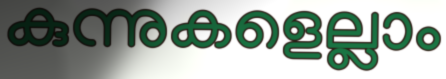
കുന്നുകളെല്ലാം